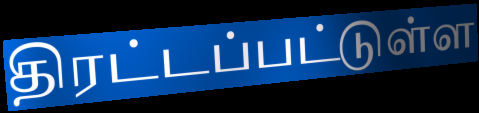
திரட்டப்பட்டுள்ள